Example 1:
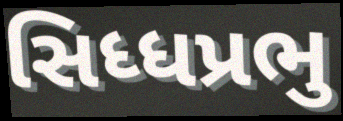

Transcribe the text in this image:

સિધ્ધપ્રભુ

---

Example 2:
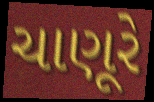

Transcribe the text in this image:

ચાણૂરે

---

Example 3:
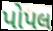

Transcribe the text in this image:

પોપલ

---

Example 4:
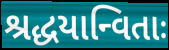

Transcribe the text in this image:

શ્રદ્ધયાન્વિતાઃ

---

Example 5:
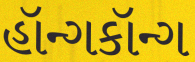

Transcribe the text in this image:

હૉન્ગકૉન્ગ